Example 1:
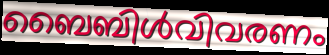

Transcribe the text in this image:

ബൈബിൾവിവരണം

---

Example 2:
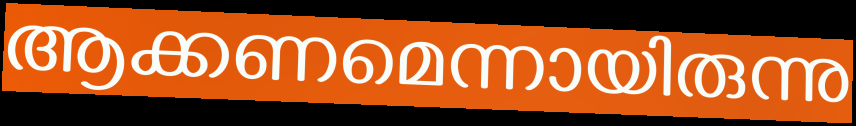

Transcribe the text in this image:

ആക്കണമെന്നായിരുന്നു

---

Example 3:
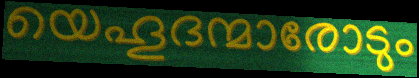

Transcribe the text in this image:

യെഹൂദന്മാരോടും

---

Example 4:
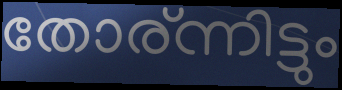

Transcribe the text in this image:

തോര്ന്നിട്ടും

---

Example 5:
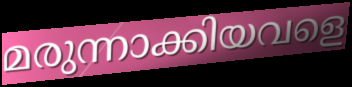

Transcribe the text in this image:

മരുന്നാക്കിയവളെ